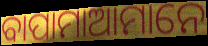
ବାପାମାଆମାନେ